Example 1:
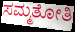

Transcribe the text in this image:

ಸಮ್ಮತೋತಿ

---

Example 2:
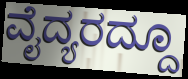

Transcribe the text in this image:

ವೈದ್ಯರದ್ದೂ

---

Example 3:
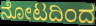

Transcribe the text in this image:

ನೋಟದಿಂದ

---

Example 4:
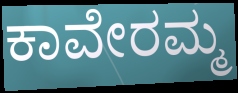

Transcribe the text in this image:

ಕಾವೇರಮ್ಮ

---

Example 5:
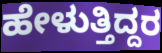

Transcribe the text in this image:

ಹೇಳುತ್ತಿದ್ದರ